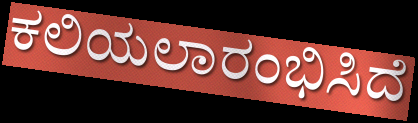
ಕಲಿಯಲಾರಂಭಿಸಿದೆ